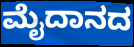
ಮೈದಾನದ